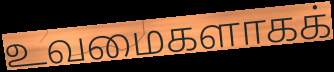
உவமைகளாகக்